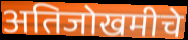
अतिजोखमीचे